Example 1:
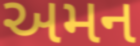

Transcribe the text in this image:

અમન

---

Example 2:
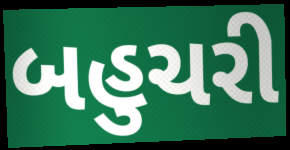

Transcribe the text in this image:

બહુચરી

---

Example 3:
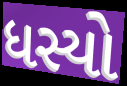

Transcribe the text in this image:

ધસ્યો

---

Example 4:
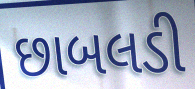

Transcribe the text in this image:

છાબલડી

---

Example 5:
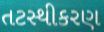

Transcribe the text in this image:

તટસ્થીકરણ